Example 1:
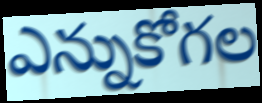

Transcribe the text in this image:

ఎన్నుకోగల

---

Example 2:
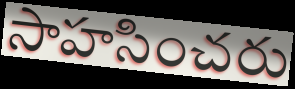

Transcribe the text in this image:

సాహసించరు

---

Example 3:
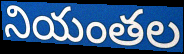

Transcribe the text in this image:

నియంతల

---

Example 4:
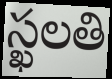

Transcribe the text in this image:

స్ఖలతి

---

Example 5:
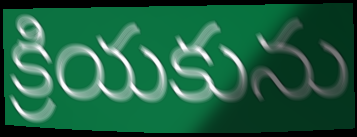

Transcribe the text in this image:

క్రియకును